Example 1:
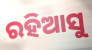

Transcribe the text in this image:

ରହିଆସୁ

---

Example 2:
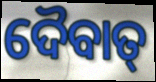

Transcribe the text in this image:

ଦୈବାତ୍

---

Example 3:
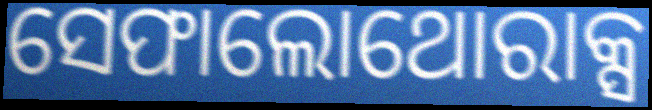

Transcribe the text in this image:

ସେଫାଲୋଥୋରାକ୍ସ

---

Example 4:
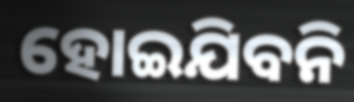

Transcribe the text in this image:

ହୋଇଯିବନି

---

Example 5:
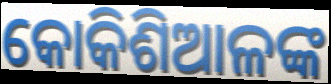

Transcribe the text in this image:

କୋକିଶିଆଳଙ୍କ